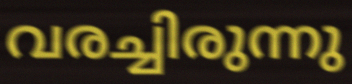
വരച്ചിരുന്നു